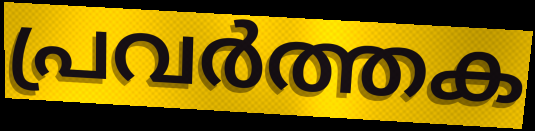
പ്രവർത്തക